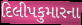
દિલીપકુમારના